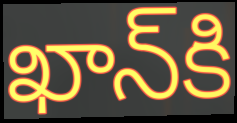
ఖాన్‌కి